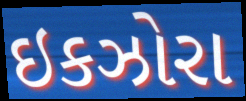
ઇકઝોરા